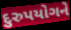
દુરુપયોગને